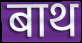
बाथ